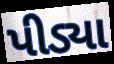
પીડ્યા